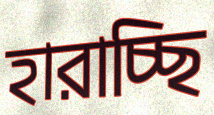
হারাচ্ছি